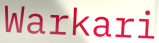
Warkari